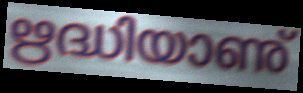
ഋദ്ധിയാണു്